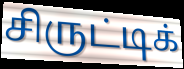
சிருட்டிக்